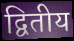
द्वितीय